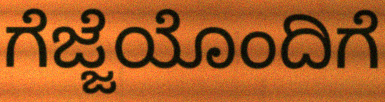
ಗೆಜ್ಜೆಯೊಂದಿಗೆ